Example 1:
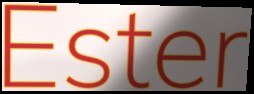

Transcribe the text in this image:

Ester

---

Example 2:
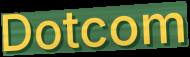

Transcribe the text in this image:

Dotcom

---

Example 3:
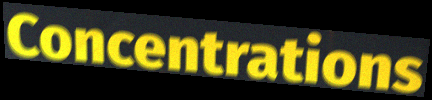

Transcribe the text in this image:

Concentrations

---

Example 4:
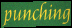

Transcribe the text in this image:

punching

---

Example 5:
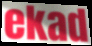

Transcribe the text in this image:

ekad